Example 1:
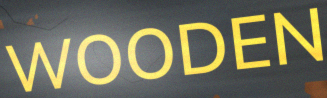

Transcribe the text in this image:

WOODEN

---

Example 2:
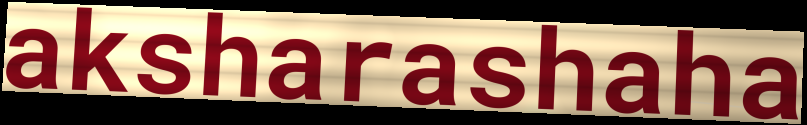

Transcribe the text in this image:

aksharashaha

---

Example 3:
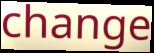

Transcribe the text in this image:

change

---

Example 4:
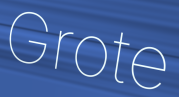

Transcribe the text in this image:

Grote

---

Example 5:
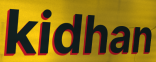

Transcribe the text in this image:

kidhan